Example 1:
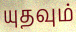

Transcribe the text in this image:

யுதவும்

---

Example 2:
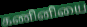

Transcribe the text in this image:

கணினியை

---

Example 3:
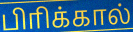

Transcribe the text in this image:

பிரிக்கால்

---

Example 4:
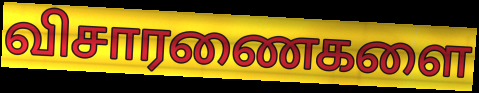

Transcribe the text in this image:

விசாரணைகளை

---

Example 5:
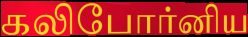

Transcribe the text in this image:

கலிபோர்னிய